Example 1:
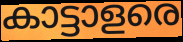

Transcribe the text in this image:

കാട്ടാളരെ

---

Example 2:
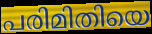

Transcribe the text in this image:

പരിമിതിയെ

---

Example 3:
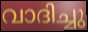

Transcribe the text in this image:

വാദിച്ചു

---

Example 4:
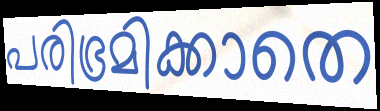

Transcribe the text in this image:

പരിഭ്രമിക്കാതെ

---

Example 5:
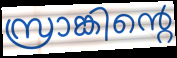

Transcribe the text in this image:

സ്രാങ്കിന്റെ